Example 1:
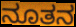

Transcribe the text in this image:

ನೂತನ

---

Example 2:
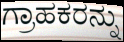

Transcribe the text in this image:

ಗ್ರಾಹಕರನ್ನು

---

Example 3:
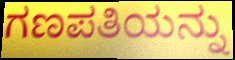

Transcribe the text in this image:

ಗಣಪತಿಯನ್ನು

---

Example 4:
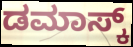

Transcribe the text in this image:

ಡಮಾಸ್ಕ್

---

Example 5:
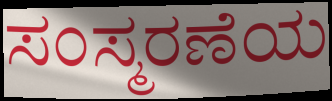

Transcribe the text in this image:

ಸಂಸ್ಮರಣೆಯ